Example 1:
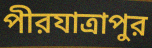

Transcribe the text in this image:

পীরযাত্রাপুর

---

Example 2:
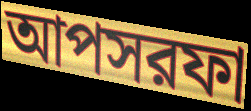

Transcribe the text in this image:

আপসরফা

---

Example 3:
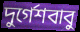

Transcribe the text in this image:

দুর্গেশবাবু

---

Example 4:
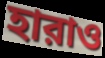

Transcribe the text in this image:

হারাও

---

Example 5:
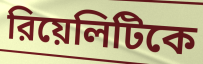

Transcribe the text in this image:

রিয়েলিটিকে